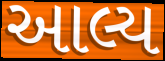
આલ્ય